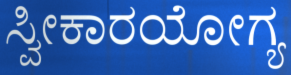
ಸ್ವೀಕಾರಯೋಗ್ಯ